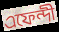
এফেন্দী